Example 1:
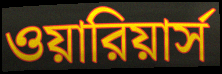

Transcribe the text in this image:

ওয়ারিয়ার্স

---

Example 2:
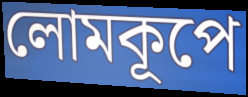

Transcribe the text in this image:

লোমকূপে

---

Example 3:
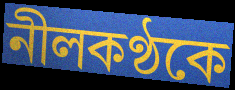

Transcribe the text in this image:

নীলকণ্ঠকে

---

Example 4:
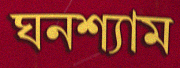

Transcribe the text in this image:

ঘনশ্যাম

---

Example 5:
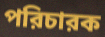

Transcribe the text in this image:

পরিচারক